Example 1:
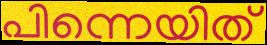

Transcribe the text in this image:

പിന്നെയിത്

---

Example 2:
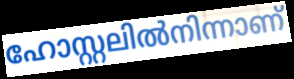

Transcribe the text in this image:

ഹോസ്റ്റലിൽനിന്നാണ്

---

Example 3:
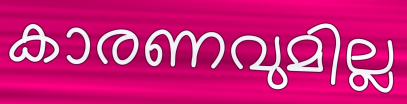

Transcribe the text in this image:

കാരണവുമില്ല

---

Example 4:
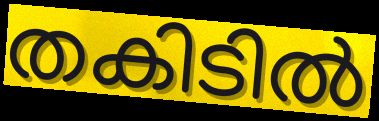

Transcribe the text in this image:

തകിടിൽ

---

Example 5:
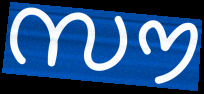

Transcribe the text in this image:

സൗ